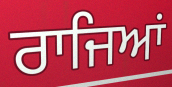
ਰਾਜਿਆਂ